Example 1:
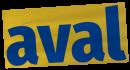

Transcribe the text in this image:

aval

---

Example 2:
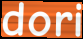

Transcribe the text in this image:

dori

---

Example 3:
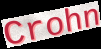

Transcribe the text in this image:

Crohn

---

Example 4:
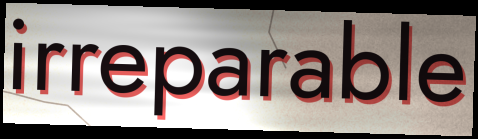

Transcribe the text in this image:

irreparable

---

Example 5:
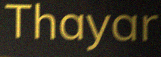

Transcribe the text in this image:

Thayar